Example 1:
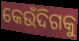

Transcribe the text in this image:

କେଉଁଦିଗକୁ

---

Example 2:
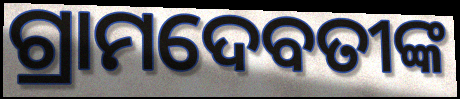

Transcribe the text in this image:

ଗ୍ରାମଦେବତୀଙ୍କ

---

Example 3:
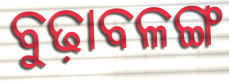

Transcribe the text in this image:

ବୁଢ଼ାବଳଙ୍ଗ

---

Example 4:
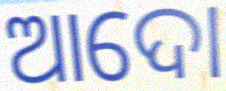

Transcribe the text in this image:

ଆଦୋ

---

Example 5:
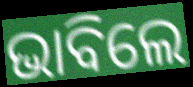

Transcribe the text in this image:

ଭାବିଲେ